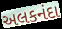
અલકનંદા